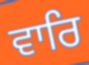
ਵਾਰਿ